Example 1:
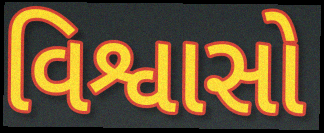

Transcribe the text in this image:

વિશ્વાસો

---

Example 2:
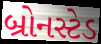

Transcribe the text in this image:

બ્રોનસ્ટેડ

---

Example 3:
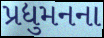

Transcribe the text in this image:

પ્રદ્યુમનના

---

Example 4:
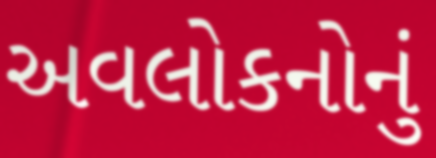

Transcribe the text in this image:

અવલોકનોનું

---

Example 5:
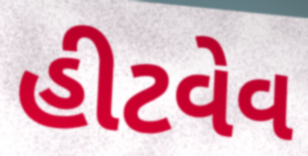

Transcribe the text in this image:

હીટવેવ